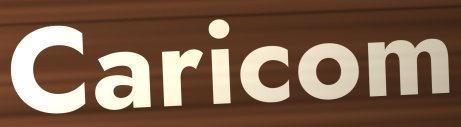
Caricom